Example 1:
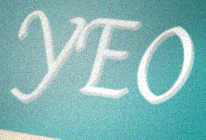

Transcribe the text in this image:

YEO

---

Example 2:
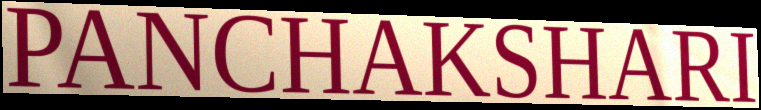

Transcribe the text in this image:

PANCHAKSHARI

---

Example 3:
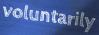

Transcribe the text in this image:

voluntarily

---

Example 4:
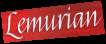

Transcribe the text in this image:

Lemurian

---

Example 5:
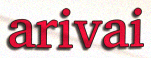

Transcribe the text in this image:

arivai